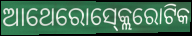
ଆଥେରୋସ୍କ୍ଲେରୋଟିକ